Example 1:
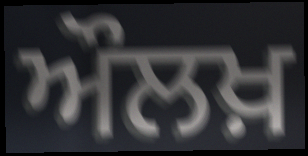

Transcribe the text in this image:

ਔਲਖ਼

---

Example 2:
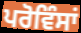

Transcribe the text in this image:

ਪਰੋਵਿੰਸਾਂ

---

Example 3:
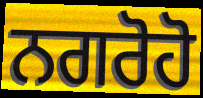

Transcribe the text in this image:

ਨਗਰੋਹੋ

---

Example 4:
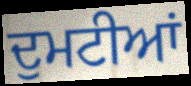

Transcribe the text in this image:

ਦੁਮਟੀਆਂ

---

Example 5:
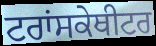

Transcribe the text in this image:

ਟਰਾਂਸਕੇਥੀਟਰ